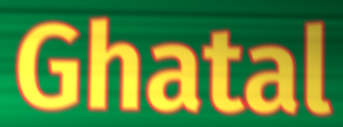
Ghatal